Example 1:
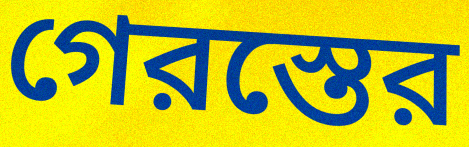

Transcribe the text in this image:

গেরস্তের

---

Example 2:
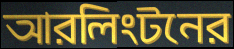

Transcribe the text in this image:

আরলিংটনের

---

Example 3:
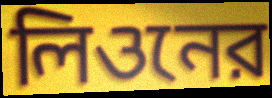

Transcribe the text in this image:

লিওনের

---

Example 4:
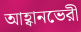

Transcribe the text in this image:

আহ্বানভেরী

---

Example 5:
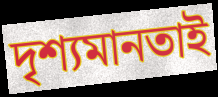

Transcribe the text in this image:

দৃশ্যমানতাই